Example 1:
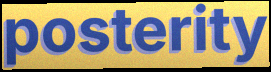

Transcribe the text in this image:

posterity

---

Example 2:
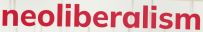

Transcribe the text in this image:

neoliberalism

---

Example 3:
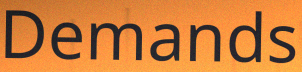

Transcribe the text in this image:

Demands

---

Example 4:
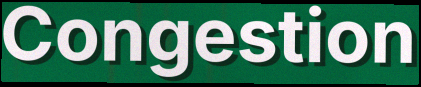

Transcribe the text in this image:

Congestion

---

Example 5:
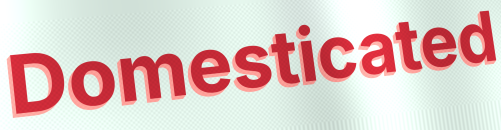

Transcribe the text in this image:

Domesticated